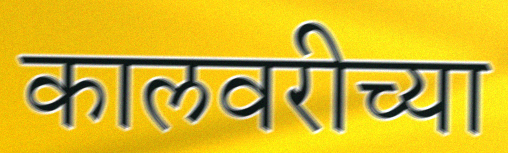
कालवरीच्या